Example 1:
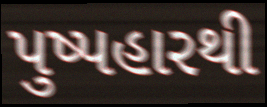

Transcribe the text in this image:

પુષ્પહારથી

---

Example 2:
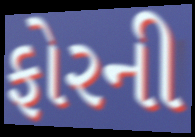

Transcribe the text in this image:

ફોરની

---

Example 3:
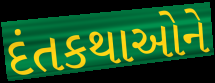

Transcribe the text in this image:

દંતકથાઓને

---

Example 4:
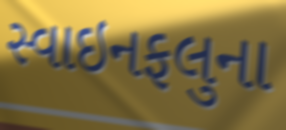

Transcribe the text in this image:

સ્વાઇનફલુના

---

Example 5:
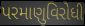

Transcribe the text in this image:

પરમાણુવિરોધી